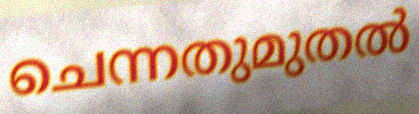
ചെന്നതുമുതൽ